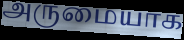
அருமையாக